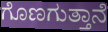
ಗೊಣಗುತ್ತಾನೆ